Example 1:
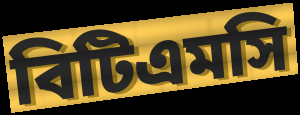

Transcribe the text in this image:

বিটিএমসি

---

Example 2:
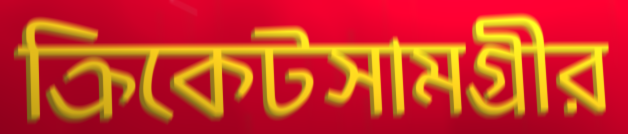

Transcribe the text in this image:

ক্রিকেটসামগ্রীর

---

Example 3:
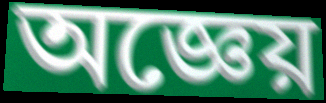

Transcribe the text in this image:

অজ্ঞেয়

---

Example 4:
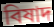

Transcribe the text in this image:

বিষাদ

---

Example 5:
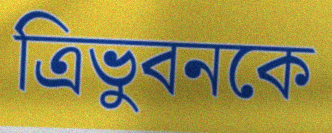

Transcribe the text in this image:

ত্রিভুবনকে